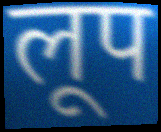
लूप